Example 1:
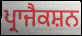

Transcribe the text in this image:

ਪ੍ਰਾਜੈਕਸ਼ਨ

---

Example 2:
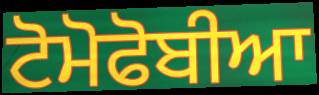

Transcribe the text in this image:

ਟੋਮੋਫੋਬੀਆ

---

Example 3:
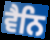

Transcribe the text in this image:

ਵੈਨਿ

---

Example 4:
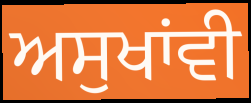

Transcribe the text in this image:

ਅਸੁਖਾਂਵੀ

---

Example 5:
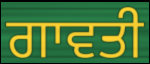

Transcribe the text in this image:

ਗਾਵਤੀ